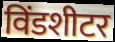
विंडशीटर